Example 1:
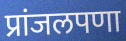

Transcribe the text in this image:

प्रांजलपणा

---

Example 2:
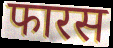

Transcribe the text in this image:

फारस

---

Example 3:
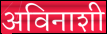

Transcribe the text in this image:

अविनाशी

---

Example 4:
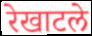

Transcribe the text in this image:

रेखाटले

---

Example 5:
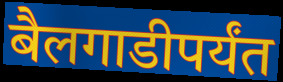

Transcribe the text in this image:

बैलगाडीपर्यंत